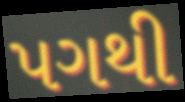
પગથી